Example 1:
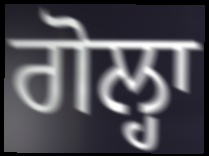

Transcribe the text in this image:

ਗੋਲ੍ਹਾ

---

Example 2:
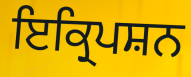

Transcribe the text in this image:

ਇਕ੍ਰਿਪਸ਼ਨ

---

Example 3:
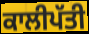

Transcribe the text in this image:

ਕਾਲੀਪੱਤੀ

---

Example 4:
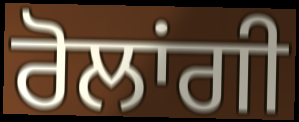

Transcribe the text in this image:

ਰੋਲਾਂਗੀ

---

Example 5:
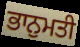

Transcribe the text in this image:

ਭਾਨੁਮਤੀ